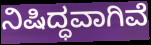
ನಿಷಿದ್ಧವಾಗಿವೆ